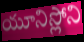
యూనిస్లోని